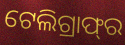
ଟେଲିଗ୍ରାଫ୍‌ର